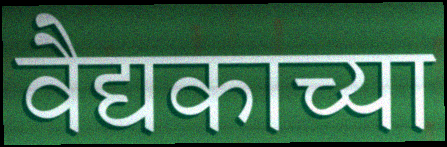
वैद्यकाच्या